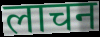
लाचन